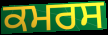
ਕਮਰਸ